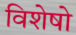
विशेषो